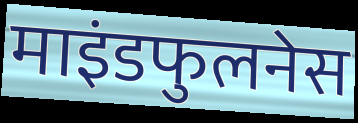
माइंडफुलनेस